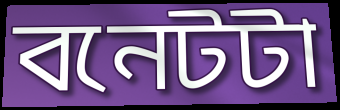
বনেটটা